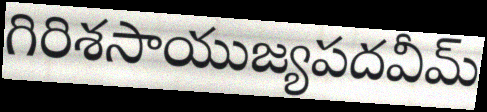
గిరిశసాయుజ్యపదవీమ్